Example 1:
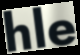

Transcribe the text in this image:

hle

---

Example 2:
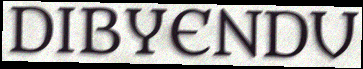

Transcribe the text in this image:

DIBYENDU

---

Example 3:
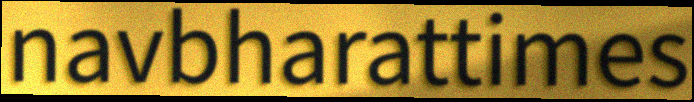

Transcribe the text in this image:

navbharattimes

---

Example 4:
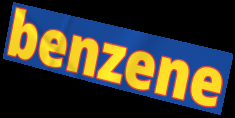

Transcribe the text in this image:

benzene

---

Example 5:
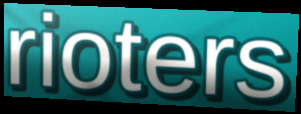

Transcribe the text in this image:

rioters